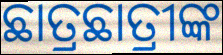
ଛାତ୍ରଛାତ୍ରୀଙ୍କ